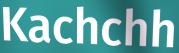
Kachchh